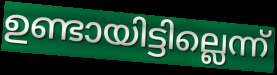
ഉണ്ടായിട്ടില്ലെന്ന്